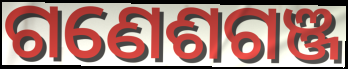
ଗଣେଶଗଞ୍ଜ